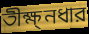
তীক্ষ্নধার